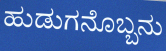
ಹುಡುಗನೊಬ್ಬನು